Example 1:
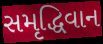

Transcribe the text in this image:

સમૃદ્ધિવાન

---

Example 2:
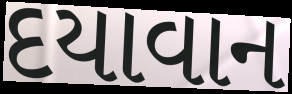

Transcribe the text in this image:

દયાવાન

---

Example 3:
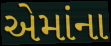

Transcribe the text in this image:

એમાંના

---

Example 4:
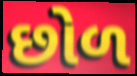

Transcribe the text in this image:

છોળ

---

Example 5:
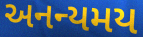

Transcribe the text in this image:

અનન્યમય